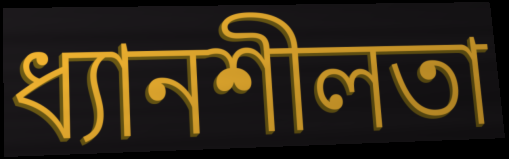
ধ্যানশীলতা